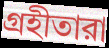
গ্রহীতারা